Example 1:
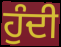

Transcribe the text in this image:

ਹੁੰਦੀ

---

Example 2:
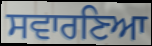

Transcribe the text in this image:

ਸਵਾਰਣਿਆ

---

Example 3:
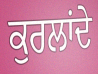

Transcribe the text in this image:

ਕੁਰਲਾਂਦੇ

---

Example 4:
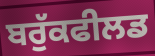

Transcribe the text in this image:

ਬਰੁੱਕਫੀਲਡ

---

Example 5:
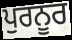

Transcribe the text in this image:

ਪੁਰਨੂਰ